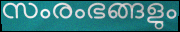
സംരംഭങ്ങളും